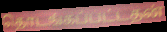
தொடங்கப்பட்டதன்